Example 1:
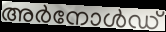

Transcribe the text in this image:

അർനോൾഡ്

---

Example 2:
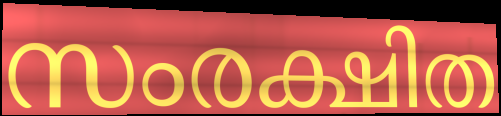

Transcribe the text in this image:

സംരക്ഷിത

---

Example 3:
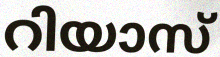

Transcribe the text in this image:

റിയാസ്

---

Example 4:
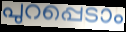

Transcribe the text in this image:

പുറപ്പെടാം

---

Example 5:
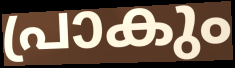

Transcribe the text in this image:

പ്രാകും